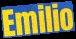
Emilio